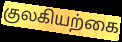
குலகியற்கை